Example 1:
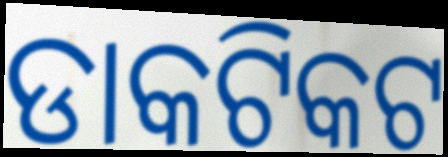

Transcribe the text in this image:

ଡାକଟିକଟ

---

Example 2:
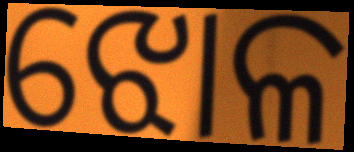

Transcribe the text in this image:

ଝୋଳ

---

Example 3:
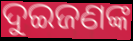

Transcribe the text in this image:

ଦୁଇଜଣଙ୍କ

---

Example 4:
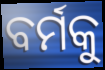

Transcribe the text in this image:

ବର୍ମକୁ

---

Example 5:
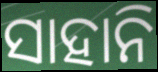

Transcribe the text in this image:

ସାହାନି